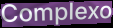
Complexo